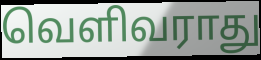
வெளிவராது